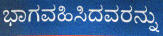
ಭಾಗವಹಿಸಿದವರನ್ನು